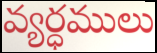
వ్యర్ధములు